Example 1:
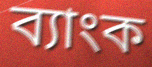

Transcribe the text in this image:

ব্যাংক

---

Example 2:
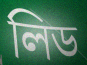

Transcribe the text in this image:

লিড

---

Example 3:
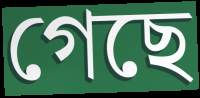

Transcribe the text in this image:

গেছে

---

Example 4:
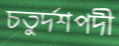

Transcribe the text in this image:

চতুর্দশপদী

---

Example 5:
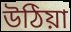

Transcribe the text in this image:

উঠিয়া